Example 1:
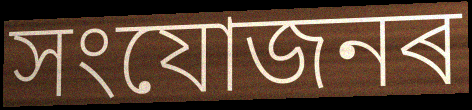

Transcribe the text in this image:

সংযোজনৰ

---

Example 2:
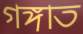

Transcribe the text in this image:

গঙ্গাত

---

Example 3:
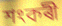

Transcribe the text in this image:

শংকৰী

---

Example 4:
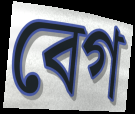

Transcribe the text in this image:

বেগ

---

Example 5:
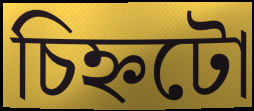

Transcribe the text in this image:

চিহ্নটো